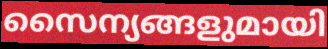
സൈന്യങ്ങളുമായി